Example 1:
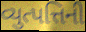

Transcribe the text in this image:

વ્યુત્પત્તિની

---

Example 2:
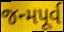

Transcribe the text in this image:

જન્મપૂર્વ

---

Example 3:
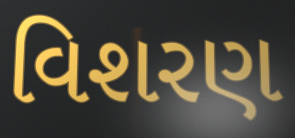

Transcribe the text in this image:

વિશરણ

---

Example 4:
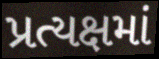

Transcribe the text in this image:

પ્રત્‍યક્ષમાં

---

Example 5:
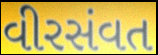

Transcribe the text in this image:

વીરસંવત